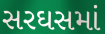
સરઘસમાં